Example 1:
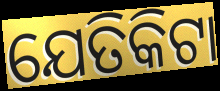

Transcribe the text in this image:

ଯେତିକିଟା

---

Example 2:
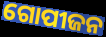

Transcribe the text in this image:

ଗୋପୀଜନ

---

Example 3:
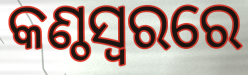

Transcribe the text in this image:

କଣ୍ଠସ୍ୱରରେ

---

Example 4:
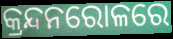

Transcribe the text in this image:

କ୍ରନ୍ଦନରୋଳରେ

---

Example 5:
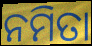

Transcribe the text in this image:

ନମିତା